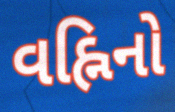
વહ્નિનો